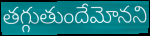
తగ్గుతుందేమోనని